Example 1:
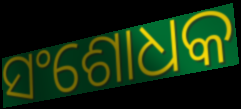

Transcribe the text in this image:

ସଂଶୋଧକ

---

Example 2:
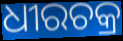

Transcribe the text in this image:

ଧୀରଚକ୍ର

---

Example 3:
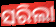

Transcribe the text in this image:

ସରିଲା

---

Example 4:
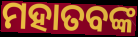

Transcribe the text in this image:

ମହାତବଙ୍କ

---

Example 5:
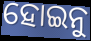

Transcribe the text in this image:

ହୋଇନୁ